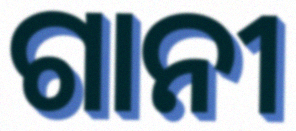
ଗାନୀ